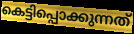
കെട്ടിപ്പൊക്കുന്നത്